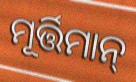
ମୂର୍ତ୍ତିମାନ୍